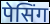
पेसिंग